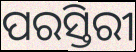
ପରସ୍ତିରୀ